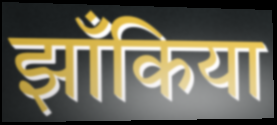
झाँकिया